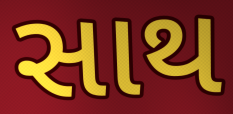
સાથ